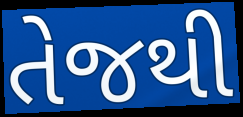
તેજથી